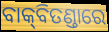
ବାକ୍‌ବିତଣ୍ଡାରେ